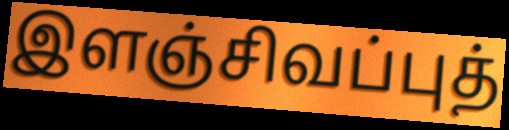
இளஞ்சிவப்புத்